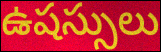
ఉషస్సులు